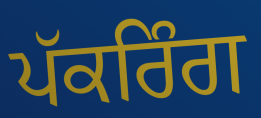
ਪੱਕਰਿੰਗ